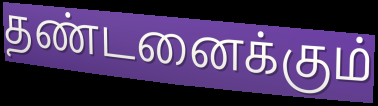
தண்டனைக்கும்